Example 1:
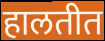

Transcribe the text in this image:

हालतीत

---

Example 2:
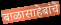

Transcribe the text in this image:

बाळासाहेबांचे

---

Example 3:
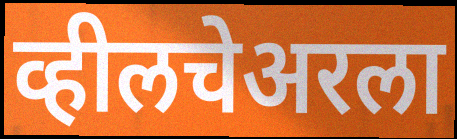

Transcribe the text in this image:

व्हीलचेअरला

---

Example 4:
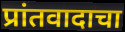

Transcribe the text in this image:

प्रांतवादाचा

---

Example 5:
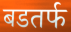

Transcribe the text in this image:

बडतर्फ